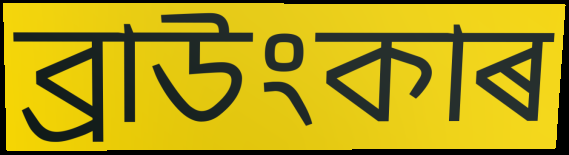
ব্ৰাউংকাৰ